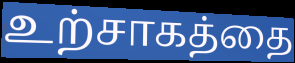
உற்சாகத்தை